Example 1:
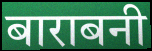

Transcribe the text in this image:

बाराबनी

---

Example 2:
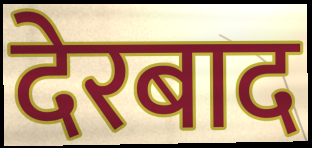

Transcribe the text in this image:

देरबाद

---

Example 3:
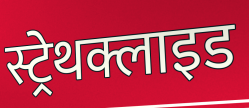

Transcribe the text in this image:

स्ट्रेथक्लाइड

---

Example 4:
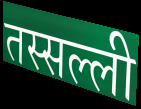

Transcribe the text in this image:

तस्सल्ली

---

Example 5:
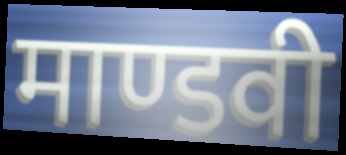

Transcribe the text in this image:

माण्डवी